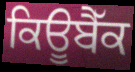
ਕਿਊਬੈੱਕ